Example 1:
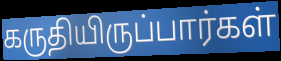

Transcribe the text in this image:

கருதியிருப்பார்கள்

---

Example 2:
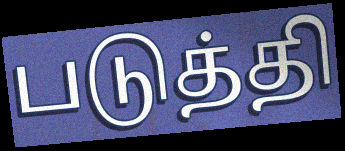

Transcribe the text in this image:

படுத்தி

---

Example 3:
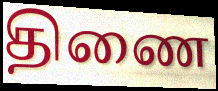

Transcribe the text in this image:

திணை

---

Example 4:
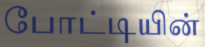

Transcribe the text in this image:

போட்டியின்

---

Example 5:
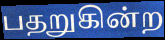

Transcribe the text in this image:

பதறுகின்ற